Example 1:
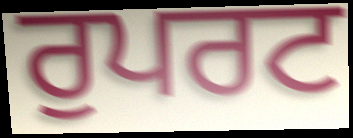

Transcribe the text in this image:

ਰੁਪਰਟ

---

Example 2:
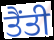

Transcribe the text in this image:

ਤੈਂਤੀ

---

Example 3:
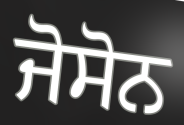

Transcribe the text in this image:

ਜੋਸੋਨ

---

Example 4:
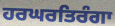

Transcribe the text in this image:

ਹਰਘਰਤਿਰੰਗਾ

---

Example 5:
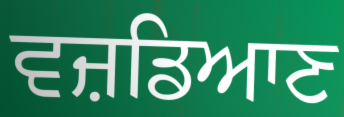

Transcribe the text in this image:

ਵਜ਼ਡਿਆਣ